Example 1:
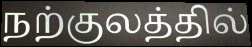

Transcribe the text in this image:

நற்குலத்தில்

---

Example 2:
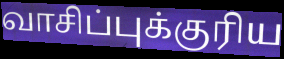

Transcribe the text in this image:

வாசிப்புக்குரிய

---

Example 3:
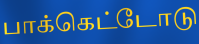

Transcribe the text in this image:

பாக்கெட்டோடு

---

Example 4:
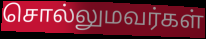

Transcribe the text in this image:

சொல்லுமவர்கள்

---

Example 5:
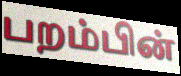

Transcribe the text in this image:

பறம்பின்